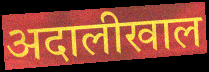
अदालीखाल